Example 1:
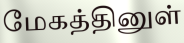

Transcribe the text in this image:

மேகத்தினுள்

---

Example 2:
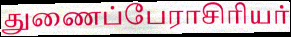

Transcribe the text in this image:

துணைப்பேராசிரியர்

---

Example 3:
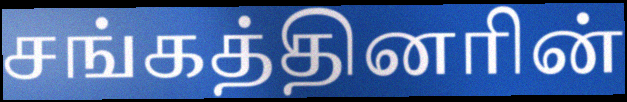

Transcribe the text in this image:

சங்கத்தினரின்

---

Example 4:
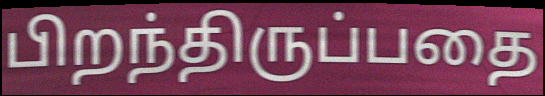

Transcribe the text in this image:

பிறந்திருப்பதை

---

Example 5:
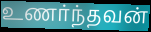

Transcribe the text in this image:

உணர்ந்தவன்